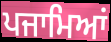
ਪਜਾਮਿਆਂ